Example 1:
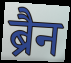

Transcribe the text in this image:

ब्रैन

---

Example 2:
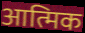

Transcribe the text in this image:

आत्मिक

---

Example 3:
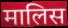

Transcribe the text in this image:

मालिस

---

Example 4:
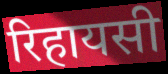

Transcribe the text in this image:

रिहायसी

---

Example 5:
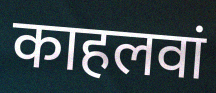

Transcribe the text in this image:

काहलवां